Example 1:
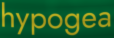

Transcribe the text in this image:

hypogea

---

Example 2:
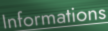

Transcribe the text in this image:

Informations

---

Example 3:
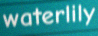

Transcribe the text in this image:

waterlily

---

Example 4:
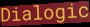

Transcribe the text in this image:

Dialogic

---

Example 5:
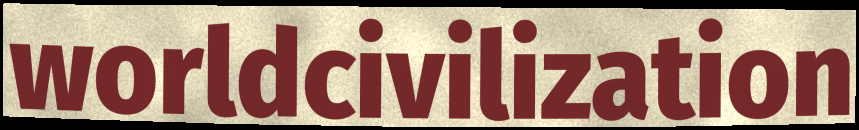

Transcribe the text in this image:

worldcivilization